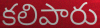
కలిపారు